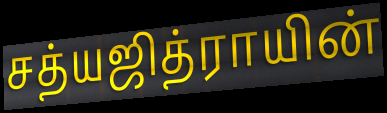
சத்யஜித்ராயின்